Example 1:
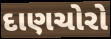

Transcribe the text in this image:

દાણચોરો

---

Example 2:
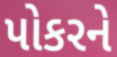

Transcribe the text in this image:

પોકરને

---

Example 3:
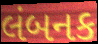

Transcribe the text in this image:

લંબનક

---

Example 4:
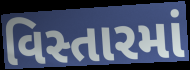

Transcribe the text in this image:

વિસ્તારમાં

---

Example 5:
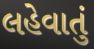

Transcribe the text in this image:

લહેવાતું